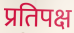
प्रतिपक्ष